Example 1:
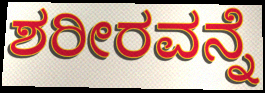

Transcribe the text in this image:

ಶರೀರವನ್ನೆ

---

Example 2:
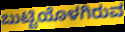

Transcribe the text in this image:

ಬುಟ್ಟಿಯೊಳಗಿರುವ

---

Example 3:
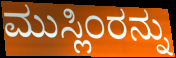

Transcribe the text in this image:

ಮುಸ್ಲಿಂರನ್ನು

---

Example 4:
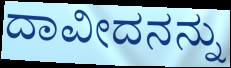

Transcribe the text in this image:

ದಾವೀದನನ್ನು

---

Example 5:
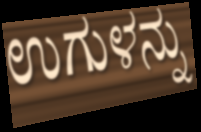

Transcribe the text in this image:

ಉಗುಳನ್ನು